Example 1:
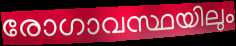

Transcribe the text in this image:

രോഗാവസ്ഥയിലും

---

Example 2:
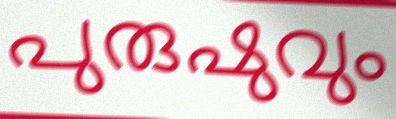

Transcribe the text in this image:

പുരുഷുവും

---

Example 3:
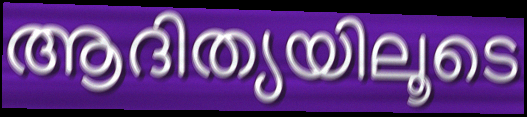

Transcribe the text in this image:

ആദിത്യയിലൂടെ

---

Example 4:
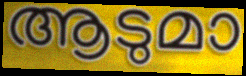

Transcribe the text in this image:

ആടുമാ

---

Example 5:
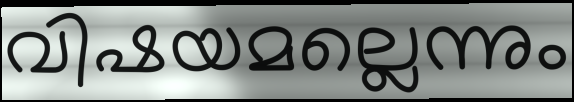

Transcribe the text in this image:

വിഷയമല്ലെന്നും